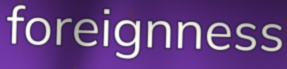
foreignness